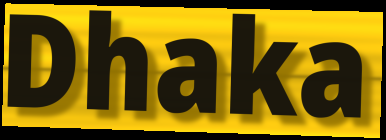
Dhaka